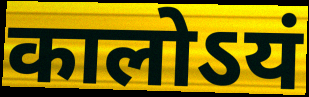
कालोऽयं